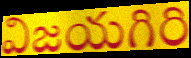
విజయగిరి